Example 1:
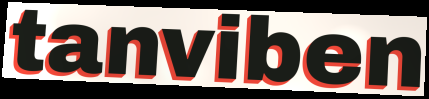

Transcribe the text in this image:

tanviben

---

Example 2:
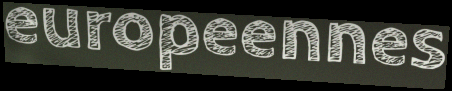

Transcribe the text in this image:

europeennes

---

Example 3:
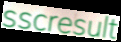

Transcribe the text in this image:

sscresult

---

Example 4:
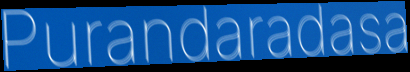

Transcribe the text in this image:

Purandaradasa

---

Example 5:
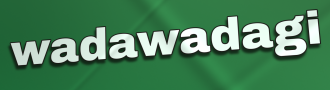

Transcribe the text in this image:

wadawadagi